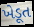
ખેડૂત